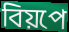
বিয়পে